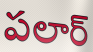
పలార్